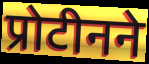
प्रोटीनने